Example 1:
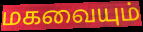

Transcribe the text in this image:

மகவையும்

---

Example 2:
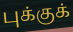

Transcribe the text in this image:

புக்குக்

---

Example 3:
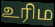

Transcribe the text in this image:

உரிம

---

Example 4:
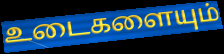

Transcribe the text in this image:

உடைகளையும்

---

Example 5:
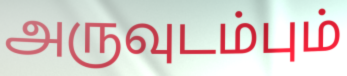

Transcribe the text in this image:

அருவுடம்பும்